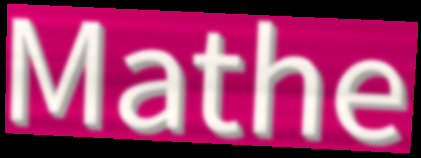
Mathe